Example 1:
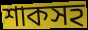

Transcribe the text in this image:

শাকসহ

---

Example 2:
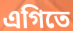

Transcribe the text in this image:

এগিতে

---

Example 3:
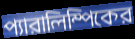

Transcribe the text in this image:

প্যারালিম্পিকের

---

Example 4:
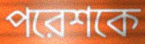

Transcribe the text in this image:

পরেশকে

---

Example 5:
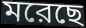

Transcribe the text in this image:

মরেছে